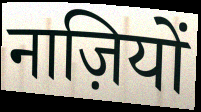
नाज़ियों